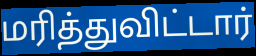
மரித்துவிட்டார்